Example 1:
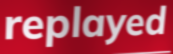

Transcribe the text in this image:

replayed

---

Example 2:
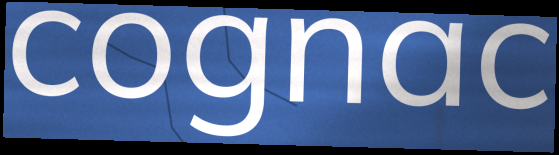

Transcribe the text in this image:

cognac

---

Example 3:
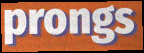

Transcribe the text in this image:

prongs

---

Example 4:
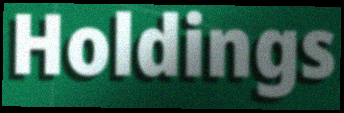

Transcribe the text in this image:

Holdings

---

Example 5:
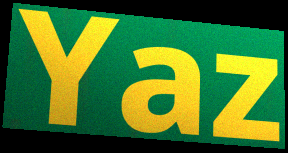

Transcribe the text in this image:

Yaz